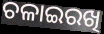
ଚଳାଇରଖି